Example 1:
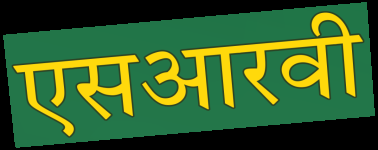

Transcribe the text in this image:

एसआरवी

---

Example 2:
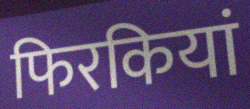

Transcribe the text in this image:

फिरकियां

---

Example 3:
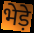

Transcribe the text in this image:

भेड़े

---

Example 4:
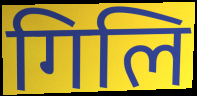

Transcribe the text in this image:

गिलि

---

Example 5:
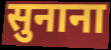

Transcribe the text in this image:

सुनाना